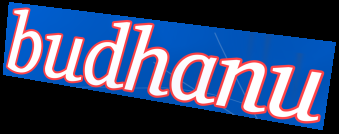
budhanu